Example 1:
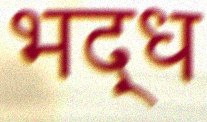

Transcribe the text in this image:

भद्ध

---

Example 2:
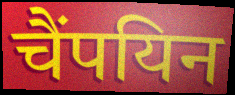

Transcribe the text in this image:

चैंपयिन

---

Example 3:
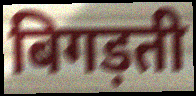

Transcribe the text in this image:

बिगड़ती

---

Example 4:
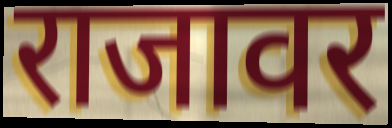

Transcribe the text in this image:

राजावर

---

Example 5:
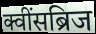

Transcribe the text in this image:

क्वींसब्रिज